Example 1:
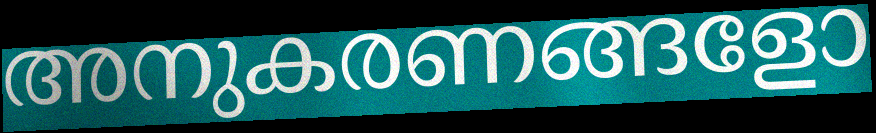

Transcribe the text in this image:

അനുകരണങ്ങളോ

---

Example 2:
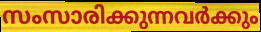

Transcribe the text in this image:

സംസാരിക്കുന്നവർക്കും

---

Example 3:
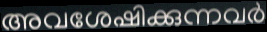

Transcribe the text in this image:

അവശേഷിക്കുന്നവർ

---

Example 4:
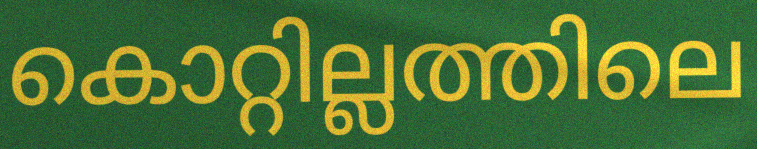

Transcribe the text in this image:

കൊറ്റില്ലത്തിലെ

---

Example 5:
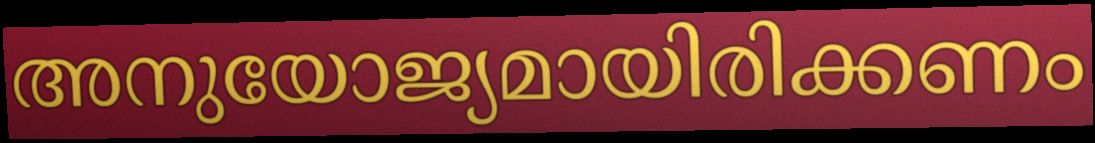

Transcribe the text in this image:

അനുയോജ്യമായിരിക്കണം